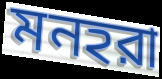
মনহরা